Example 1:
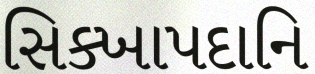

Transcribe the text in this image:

સિક્ખાપદાનિ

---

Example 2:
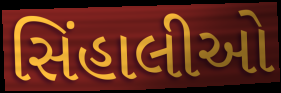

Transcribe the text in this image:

સિંહાલીઓ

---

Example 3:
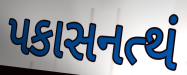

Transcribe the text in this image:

પકાસનત્થં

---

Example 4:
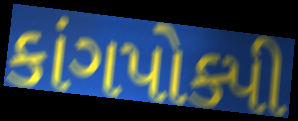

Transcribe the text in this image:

કાંગપોક્પી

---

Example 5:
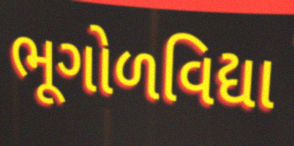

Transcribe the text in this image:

ભૂગોળવિદ્યા